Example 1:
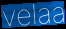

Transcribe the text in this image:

velaa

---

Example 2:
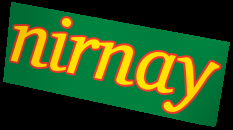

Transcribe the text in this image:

nirnay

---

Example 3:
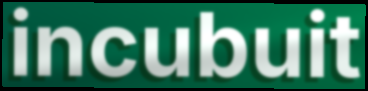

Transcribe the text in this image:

incubuit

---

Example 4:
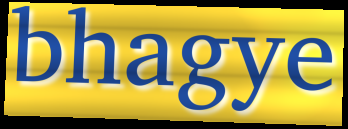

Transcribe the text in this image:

bhagye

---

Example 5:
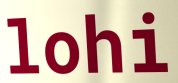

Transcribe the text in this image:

lohi